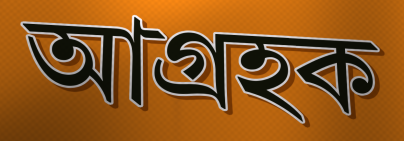
আগ্ৰহক